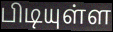
பிடியுள்ள